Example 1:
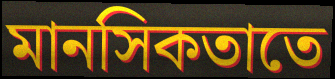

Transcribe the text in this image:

মানসিকতাতে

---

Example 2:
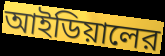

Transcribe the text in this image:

আইডিয়ালের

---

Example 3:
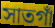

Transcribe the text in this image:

সাতগাঁ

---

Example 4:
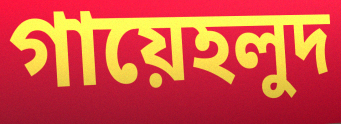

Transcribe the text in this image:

গায়েহলুদ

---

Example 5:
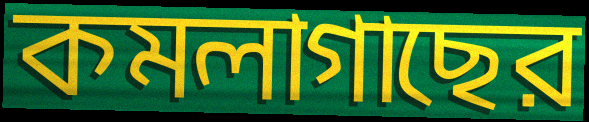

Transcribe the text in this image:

কমলাগাছের